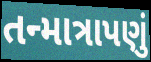
તન્માત્રાપણું